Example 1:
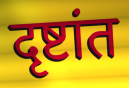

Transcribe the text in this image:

दृष्टांत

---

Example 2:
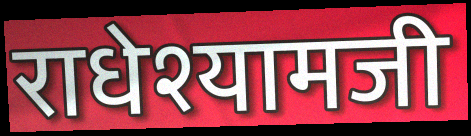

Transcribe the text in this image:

राधेश्यामजी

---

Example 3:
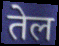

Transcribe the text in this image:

तेल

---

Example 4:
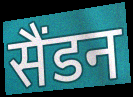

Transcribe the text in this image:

सैंडन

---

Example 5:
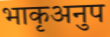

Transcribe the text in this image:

भाकृअनुप